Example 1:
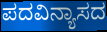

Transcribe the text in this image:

ಪದವಿನ್ಯಾಸದ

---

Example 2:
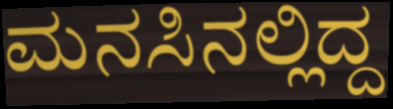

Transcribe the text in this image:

ಮನಸಿನಲ್ಲಿದ್ದ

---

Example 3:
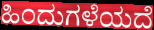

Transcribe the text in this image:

ಹಿಂದುಗಳೆಯದೆ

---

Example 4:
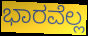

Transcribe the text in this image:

ಭಾರವೆಲ್ಲ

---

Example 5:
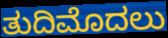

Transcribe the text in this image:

ತುದಿಮೊದಲು